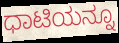
ಧಾಟಿಯನ್ನೂ